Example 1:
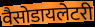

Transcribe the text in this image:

वैसोडायलेटरी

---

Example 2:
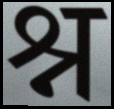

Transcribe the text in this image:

श्न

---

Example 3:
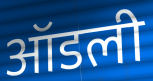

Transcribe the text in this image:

ऑडली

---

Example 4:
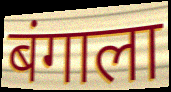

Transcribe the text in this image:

बंगाला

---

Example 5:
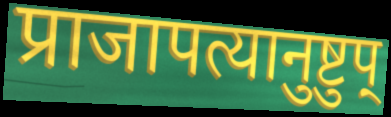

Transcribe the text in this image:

प्राजापत्यानुष्टुप्